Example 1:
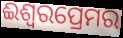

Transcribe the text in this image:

ଈଶ୍ୱରପ୍ରେମର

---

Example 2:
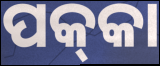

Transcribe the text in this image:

ପକ୍‍କା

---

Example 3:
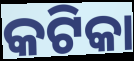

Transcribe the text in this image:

କଟିକା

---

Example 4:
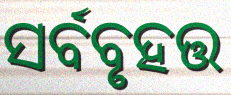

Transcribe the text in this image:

ସର୍ବବୃହତ୍ତ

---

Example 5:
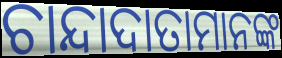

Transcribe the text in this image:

ଚାନ୍ଦାଦାତାମାନଙ୍କ